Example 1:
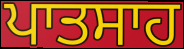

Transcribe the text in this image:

ਪਾਤਸਾਹ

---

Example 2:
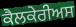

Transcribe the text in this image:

ਕੈਲਕੇਰੀਅਸ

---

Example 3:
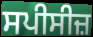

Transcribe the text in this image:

ਸਪੀਸੀਜ਼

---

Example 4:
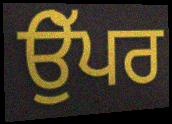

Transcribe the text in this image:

ਉੁੱਪਰ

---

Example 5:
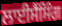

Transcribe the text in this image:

ਲਾਈਸੈਂਸਿੰਗ